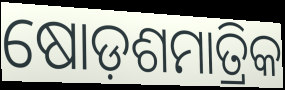
ଷୋଡ଼ଶମାତ୍ରିକ